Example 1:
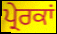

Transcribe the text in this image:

ਪ੍ਰੇਰਕਾਂ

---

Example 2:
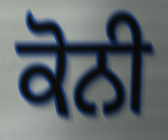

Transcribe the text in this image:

ਕੋਨੀ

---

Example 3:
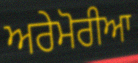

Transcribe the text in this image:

ਅਰੇਮੋਰੀਆ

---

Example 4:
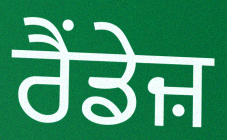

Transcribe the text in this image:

ਰੈਂਡੇਜ਼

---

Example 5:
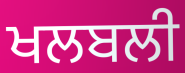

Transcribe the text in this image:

ਖਲਬਲੀ